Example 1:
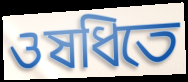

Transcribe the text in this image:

ওষধিতে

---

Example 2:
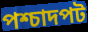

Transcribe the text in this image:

পশ্চাদপট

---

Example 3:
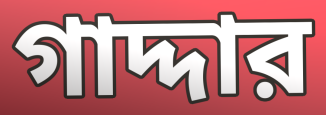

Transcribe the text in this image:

গাদ্দার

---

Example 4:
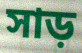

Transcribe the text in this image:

সাড়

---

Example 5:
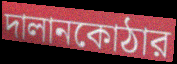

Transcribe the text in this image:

দালানকোঠার